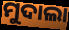
ମୁଦାଲା